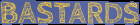
BASTARDS